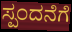
ಸ್ಪಂದನೆಗೆ